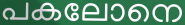
പകലോനെ